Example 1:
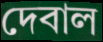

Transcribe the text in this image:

দেবাল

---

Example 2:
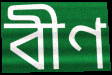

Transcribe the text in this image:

বীণ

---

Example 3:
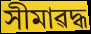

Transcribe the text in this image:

সীমাৱদ্ধ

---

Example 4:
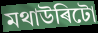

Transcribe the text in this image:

মথাউৰিটো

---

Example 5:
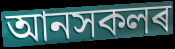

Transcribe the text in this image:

আনসকলৰ